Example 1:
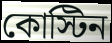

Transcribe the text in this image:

কোস্টিন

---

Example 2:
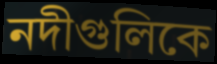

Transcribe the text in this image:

নদীগুলিকে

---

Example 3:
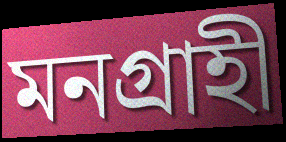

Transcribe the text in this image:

মনগ্রাহী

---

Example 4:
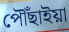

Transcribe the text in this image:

পৌঁছাইয়া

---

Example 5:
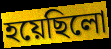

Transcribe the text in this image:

হয়েছিলো